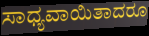
ಸಾಧ್ಯವಾಯಿತಾದರೂ